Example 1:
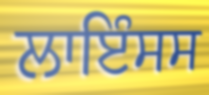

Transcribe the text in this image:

ਲਾਇੰਸਸ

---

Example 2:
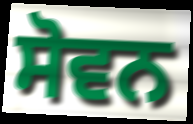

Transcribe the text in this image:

ਸੋਵਨ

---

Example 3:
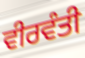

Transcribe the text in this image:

ਵੀਰਵੰਤੀ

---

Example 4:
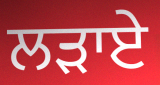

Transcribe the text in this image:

ਲੜਾਏ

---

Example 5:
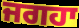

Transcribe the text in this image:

ਜਗਹਾ